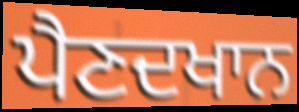
ਪੈਣਦਖਾਨ